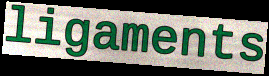
ligaments